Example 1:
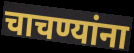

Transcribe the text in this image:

चाचण्यांना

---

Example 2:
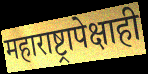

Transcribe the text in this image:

महाराष्ट्रापेक्षाही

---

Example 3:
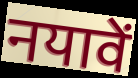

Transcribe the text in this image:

नयावें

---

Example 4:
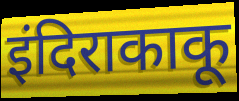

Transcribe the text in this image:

इंदिराकाकू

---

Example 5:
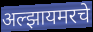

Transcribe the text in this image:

अल्झायमरचे